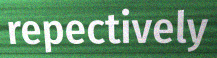
repectively